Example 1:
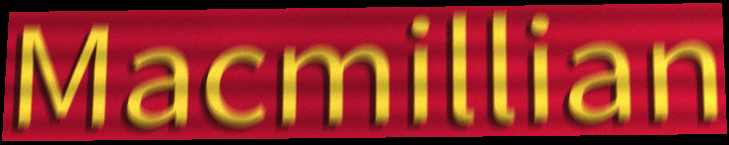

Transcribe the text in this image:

Macmillian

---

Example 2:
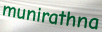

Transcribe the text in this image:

munirathna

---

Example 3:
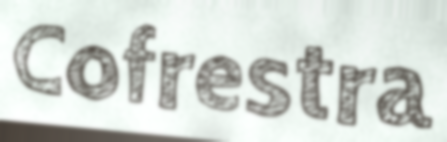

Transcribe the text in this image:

Cofrestra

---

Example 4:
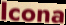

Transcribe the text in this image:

Icona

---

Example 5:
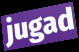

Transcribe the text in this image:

jugad